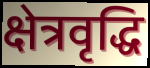
क्षेत्रवृद्धि